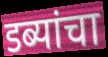
डब्यांचा